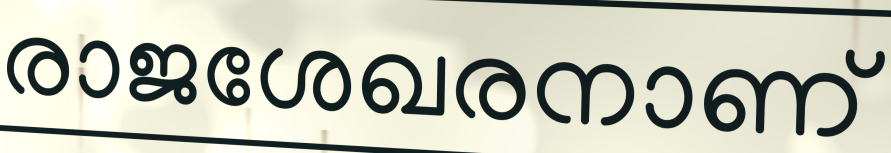
രാജശേഖരനാണ്